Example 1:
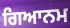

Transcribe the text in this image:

ਗਿਆਨਮ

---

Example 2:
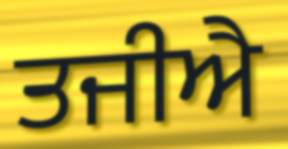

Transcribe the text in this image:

ਤਜੀਐ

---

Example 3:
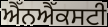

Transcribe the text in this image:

ਐੱਨਐੱਕਸਟੀ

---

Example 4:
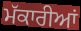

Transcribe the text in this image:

ਮੱਕਾਰੀਆਂ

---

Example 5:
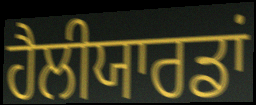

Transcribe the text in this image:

ਹੈਲੀਯਾਰਡਾਂ